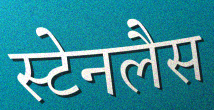
स्टेनलैस